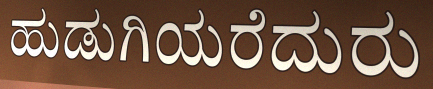
ಹುಡುಗಿಯರೆದುರು